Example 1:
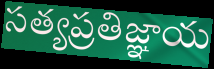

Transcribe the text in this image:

సత్యప్రతిజ్ఞాయ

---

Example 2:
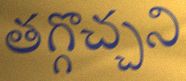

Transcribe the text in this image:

తగ్గొచ్చని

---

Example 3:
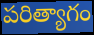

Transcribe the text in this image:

పరిత్యాగం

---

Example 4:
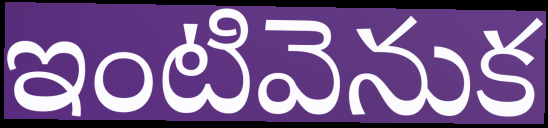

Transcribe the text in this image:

ఇంటివెనుక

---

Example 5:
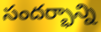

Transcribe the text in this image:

సందర్భాన్ని